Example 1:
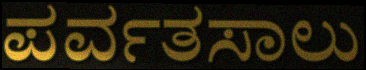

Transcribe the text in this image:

ಪರ್ವತಸಾಲು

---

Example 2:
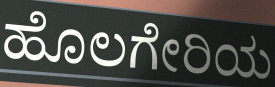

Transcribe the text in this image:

ಹೊಲಗೇರಿಯ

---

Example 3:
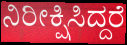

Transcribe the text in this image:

ನಿರೀಕ್ಷಿಸಿದ್ದರೆ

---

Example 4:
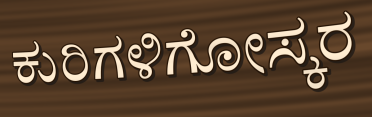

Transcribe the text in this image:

ಕುರಿಗಳಿಗೋಸ್ಕರ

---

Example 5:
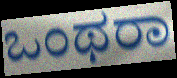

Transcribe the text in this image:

ಒಂಥರಾ